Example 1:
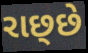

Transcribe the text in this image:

રાછ્છે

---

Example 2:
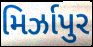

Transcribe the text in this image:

મિર્ઝાપુર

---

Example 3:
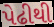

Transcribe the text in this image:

પેઢીથી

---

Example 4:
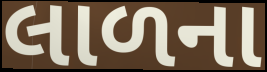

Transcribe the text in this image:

લાળના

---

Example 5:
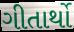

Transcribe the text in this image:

ગીતાર્થો